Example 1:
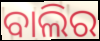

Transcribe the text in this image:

ବାଲିର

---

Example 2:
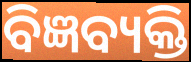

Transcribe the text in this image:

ବିଜ୍ଞବ୍ୟକ୍ତି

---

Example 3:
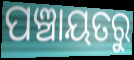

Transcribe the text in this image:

ପଞ୍ଚାୟତରୁ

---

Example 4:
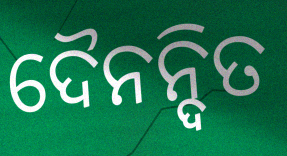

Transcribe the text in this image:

ଦୈନନ୍ଦିତ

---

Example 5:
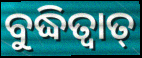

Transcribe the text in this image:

ବୁଦ୍ଧିତ୍ୱାତ୍